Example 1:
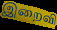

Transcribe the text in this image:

இறைவி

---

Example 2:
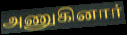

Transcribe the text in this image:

அணுகினார்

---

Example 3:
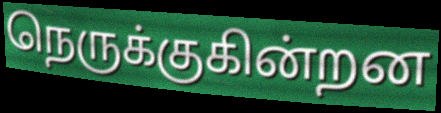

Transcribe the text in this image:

நெருக்குகின்றன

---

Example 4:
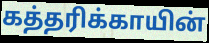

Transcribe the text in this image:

கத்தரிக்காயின்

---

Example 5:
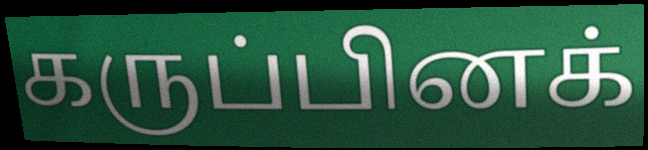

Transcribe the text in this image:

கருப்பினக்